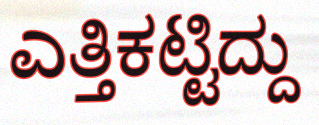
ಎತ್ತಿಕಟ್ಟಿದ್ದು